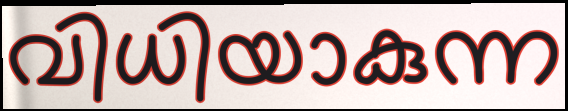
വിധിയാകുന്ന